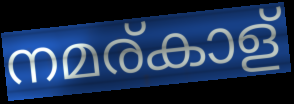
നമര്കാള്